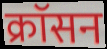
क्रॉसन